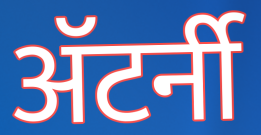
ॲटर्नी